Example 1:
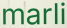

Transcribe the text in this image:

marli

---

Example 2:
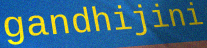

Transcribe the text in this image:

gandhijini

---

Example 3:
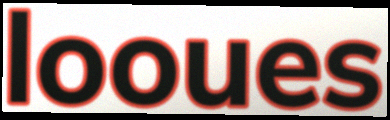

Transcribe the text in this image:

looues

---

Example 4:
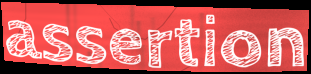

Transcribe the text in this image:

assertion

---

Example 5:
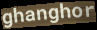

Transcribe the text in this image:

ghanghor